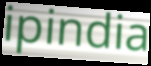
ipindia